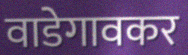
वाडेगावकर